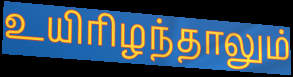
உயிரிழந்தாலும்